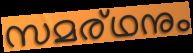
സമര്ഥനും